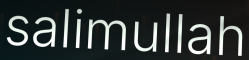
salimullah